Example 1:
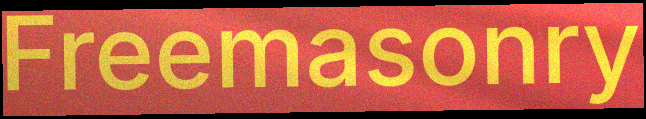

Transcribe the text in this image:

Freemasonry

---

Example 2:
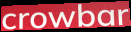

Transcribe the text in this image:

crowbar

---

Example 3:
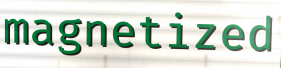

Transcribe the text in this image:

magnetized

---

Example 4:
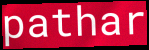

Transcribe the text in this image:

pathar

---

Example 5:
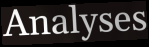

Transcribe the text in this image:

Analyses